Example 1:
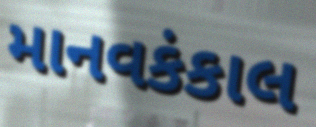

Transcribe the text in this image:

માનવકંકાલ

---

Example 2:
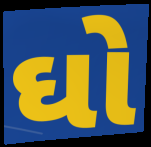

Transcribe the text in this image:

ઘો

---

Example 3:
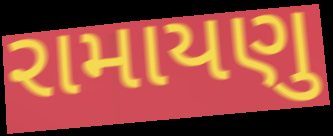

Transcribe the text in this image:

રામાયણુ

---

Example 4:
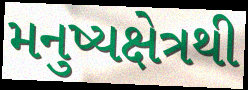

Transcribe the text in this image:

મનુષ્યક્ષેત્રથી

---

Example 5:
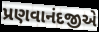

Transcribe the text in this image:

પ્રણવાનંદજીએ